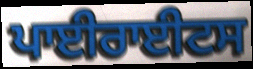
ਪਾਈਰਾਈਟਸ